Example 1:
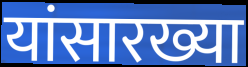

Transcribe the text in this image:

यांसारख्‍या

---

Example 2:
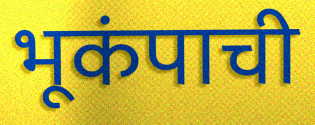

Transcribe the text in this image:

भूकंपाची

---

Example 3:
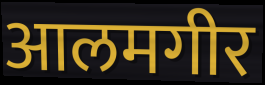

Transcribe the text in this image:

आलमगीर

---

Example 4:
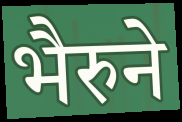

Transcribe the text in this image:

भैरुने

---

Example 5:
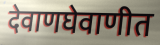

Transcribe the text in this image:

देवाणघेवाणीत